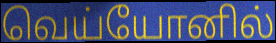
வெய்யோனில்